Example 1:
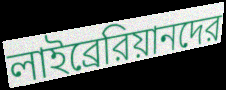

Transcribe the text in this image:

লাইব্রেরিয়ানদের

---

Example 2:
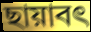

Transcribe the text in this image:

ছায়াবৎ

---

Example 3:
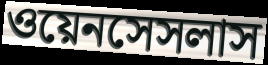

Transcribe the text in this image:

ওয়েনসেসলাস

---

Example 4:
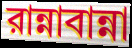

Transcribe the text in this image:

রান্নাবান্না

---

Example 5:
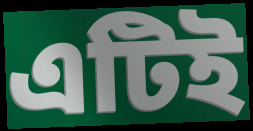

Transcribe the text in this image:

এটিই